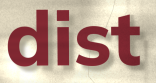
dist